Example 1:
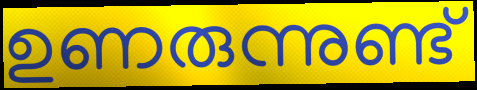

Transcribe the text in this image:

ഉണരുന്നുണ്ട്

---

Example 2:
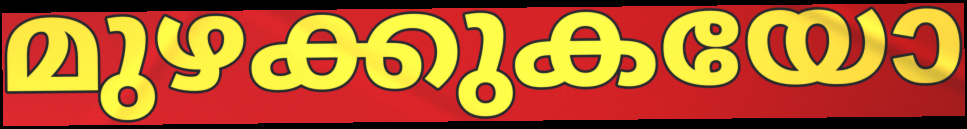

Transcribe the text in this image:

മുഴക്കുകയോ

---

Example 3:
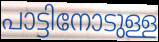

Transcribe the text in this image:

പാട്ടിനോടുള്ള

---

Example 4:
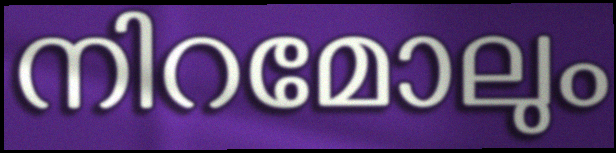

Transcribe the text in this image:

നിറമോലും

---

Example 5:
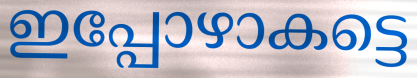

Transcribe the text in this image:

ഇപ്പോഴാകട്ടെ